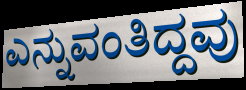
ಎನ್ನುವಂತಿದ್ದವು